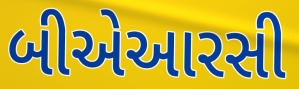
બીએઆરસી